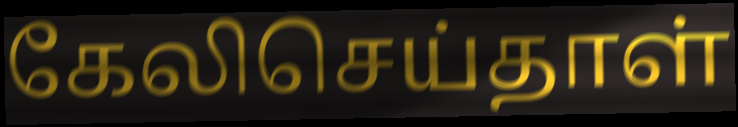
கேலிசெய்தாள்